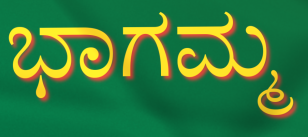
ಭಾಗಮ್ಮ